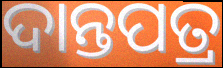
ଦାନ୍ତପତ୍ର